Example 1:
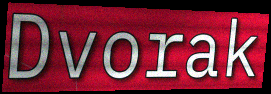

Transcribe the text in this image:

Dvorak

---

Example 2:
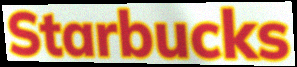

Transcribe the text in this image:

Starbucks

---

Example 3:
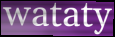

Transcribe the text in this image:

wataty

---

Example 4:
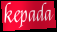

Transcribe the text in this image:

kepada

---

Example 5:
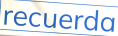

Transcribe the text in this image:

recuerda